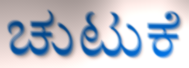
ಚುಟುಕೆ